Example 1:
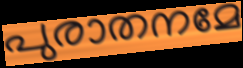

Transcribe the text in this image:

പുരാതനമേ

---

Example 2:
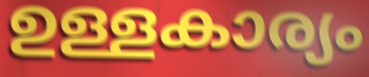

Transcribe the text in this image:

ഉള്ളകാര്യം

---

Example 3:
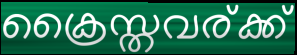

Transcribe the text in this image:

ക്രൈസ്തവര്ക്ക്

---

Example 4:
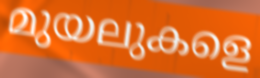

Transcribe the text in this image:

മുയലുകളെ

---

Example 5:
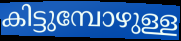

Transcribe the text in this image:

കിട്ടുമ്പോഴുള്ള